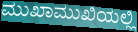
ಮುಖಾಮುಖಿಯಲ್ಲಿ